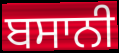
ਬਸਾਨੀ